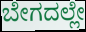
ಬೇಗದಲ್ಲೇ